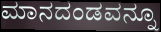
ಮಾನದಂಡವನ್ನೂ